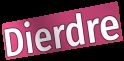
Dierdre